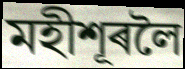
মহীশূৰলৈ